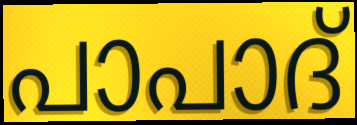
പാപാദ്